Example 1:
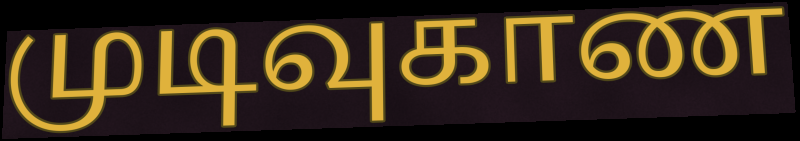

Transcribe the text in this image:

முடிவுகாண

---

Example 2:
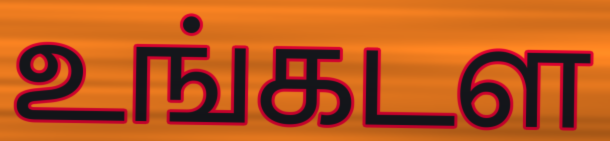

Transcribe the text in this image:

உங்கடள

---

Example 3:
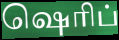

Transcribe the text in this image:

ஷெரிப்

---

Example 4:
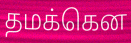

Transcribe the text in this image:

தமக்கென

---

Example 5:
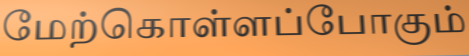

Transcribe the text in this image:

மேற்கொள்ளப்போகும்